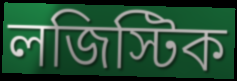
লজিস্টিক